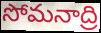
సోమనాద్రి